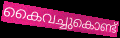
കൈവച്ചുകൊണ്ട്